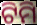
ଟିମି